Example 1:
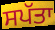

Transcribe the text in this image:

ਸਪੱਤਾ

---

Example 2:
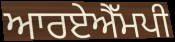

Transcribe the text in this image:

ਆਰਏਐੱਮਪੀ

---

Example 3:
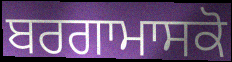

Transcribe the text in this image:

ਬਰਗਾਮਾਸਕੋ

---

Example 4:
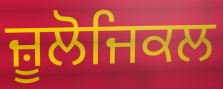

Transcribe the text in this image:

ਜ਼ੂਲੋਜਿਕਲ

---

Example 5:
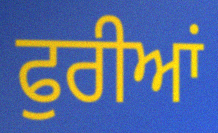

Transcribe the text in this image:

ਫੁਰੀਆਂ